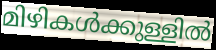
മിഴികൾക്കുള്ളിൽ